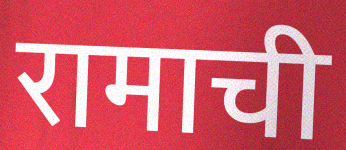
रामाची